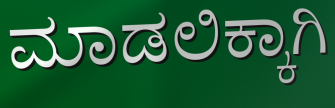
ಮಾಡಲಿಕ್ಕಾಗಿ